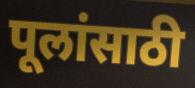
पूलांसाठी